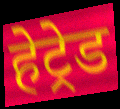
हेट्रेड